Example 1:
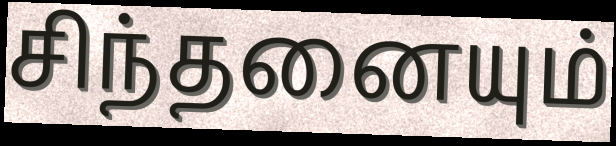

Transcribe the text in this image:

சிந்தனையும்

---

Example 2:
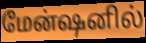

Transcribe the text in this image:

மேன்ஷனில்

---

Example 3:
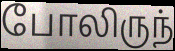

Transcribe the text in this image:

போலிருந்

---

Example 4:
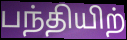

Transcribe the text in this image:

பந்தியிற்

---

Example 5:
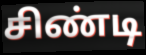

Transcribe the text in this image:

சிண்டி